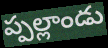
ప్పల్లాండు